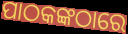
ପାଠକଙ୍କଠାରେ